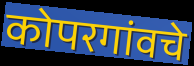
कोपरगांवचे